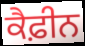
ਕੈਫ਼ੀਨ